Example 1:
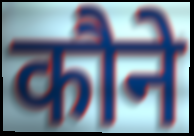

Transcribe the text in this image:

कौने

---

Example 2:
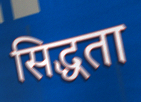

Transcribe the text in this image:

सिद्धता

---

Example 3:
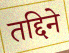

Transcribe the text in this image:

तद्दिने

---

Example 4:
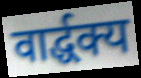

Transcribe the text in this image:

वार्द्धक्य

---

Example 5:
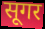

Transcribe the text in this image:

सूगर